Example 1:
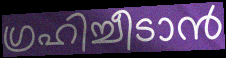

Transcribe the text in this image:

ഗ്രഹിച്ചീടാൻ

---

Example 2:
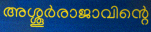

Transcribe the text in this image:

അശ്ശൂർരാജാവിന്റെ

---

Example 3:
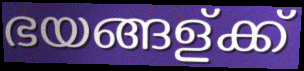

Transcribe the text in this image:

ഭയങ്ങള്ക്ക്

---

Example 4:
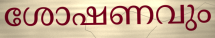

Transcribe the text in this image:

ശോഷണവും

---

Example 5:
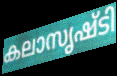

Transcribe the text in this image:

കലാസൃഷ്ടി